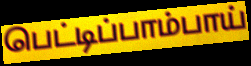
பெட்டிப்பாம்பாய்